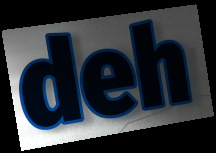
deh